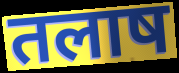
तलाष